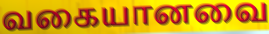
வகையானவை